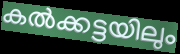
കൽക്കട്ടയിലും